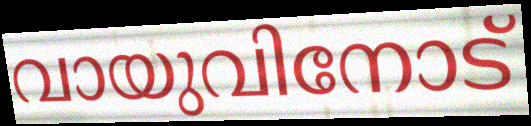
വായുവിനോട്